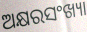
ଅକ୍ଷରସଂଖ୍ୟା